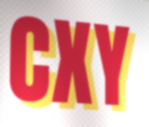
CXY